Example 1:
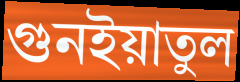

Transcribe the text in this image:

গুনইয়াতুল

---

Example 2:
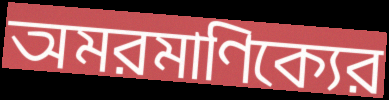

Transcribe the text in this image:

অমরমাণিক্যের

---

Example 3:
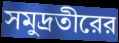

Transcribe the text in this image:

সমুদ্রতীরের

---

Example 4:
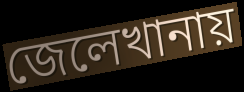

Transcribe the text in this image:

জেলেখানায়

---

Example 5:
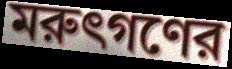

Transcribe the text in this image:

মরুৎগণের